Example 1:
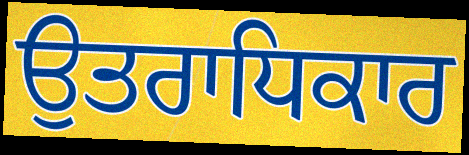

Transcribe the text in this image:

ਉਤਰਾਧਿਕਾਰ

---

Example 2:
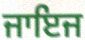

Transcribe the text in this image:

ਜਾਇਜ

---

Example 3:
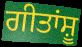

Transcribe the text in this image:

ਗੀਤਾਂਸ਼ੂ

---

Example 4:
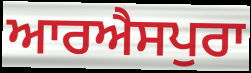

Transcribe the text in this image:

ਆਰਐਸਪੁਰਾ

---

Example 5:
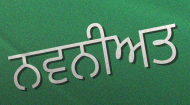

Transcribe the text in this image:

ਨਵਨੀਅਤ